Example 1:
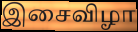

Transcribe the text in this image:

இசைவிழா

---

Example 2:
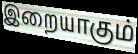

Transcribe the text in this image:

இறையாகும்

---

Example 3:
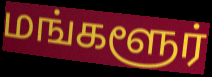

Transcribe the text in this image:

மங்களூர்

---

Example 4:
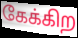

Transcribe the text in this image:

கேக்கிற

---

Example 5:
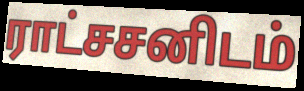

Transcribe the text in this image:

ராட்சசனிடம்